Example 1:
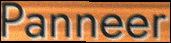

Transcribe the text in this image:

Panneer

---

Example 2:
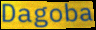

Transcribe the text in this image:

Dagoba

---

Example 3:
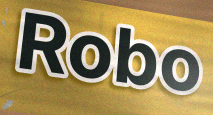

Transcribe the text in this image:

Robo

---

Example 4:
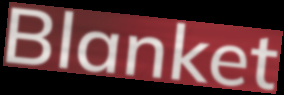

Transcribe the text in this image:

Blanket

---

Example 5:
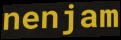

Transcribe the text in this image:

nenjam